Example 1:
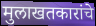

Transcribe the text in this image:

मुलाखतकारांचे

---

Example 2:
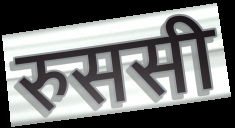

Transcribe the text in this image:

रुससी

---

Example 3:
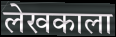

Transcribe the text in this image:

लेखकाला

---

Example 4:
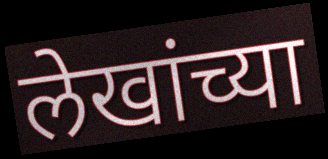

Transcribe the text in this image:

लेखांच्या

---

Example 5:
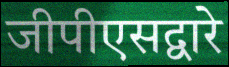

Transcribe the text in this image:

जीपीएसद्वारे